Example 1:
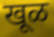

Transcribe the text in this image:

खूळ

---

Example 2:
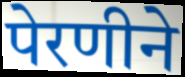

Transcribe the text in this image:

पेरणीने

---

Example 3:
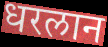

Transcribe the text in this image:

धरलान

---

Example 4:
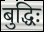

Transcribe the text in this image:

बुद्धिः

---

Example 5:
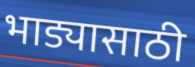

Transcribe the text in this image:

भाड्यासाठी